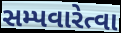
સમ્પવારેત્વા